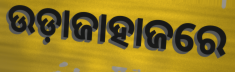
ଉଡ଼ାଜାହାଜରେ